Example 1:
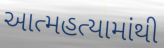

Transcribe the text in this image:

આત્મહત્યામાંથી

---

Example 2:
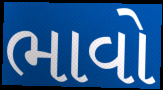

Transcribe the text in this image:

ભાવો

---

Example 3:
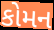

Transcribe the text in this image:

કોમન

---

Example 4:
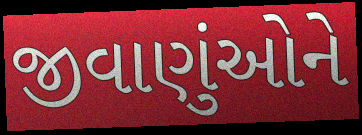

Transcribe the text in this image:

જીવાણુંઓને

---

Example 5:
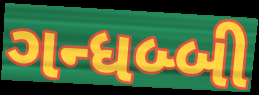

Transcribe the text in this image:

ગન્ધબ્બી